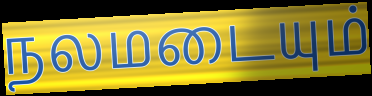
நலமடையும்